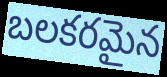
బలకరమైన